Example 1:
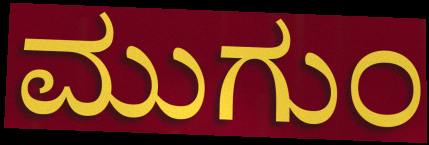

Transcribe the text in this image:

ಮುಗುಂ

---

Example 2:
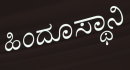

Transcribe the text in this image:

ಹಿಂದೂಸ್ಥಾನಿ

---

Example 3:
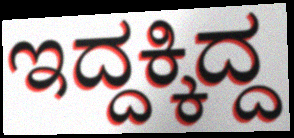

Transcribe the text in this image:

ಇದ್ದಕ್ಕಿದ್ದ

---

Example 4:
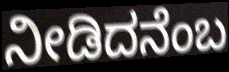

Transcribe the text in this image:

ನೀಡಿದನೆಂಬ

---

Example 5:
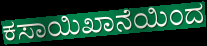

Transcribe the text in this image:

ಕಸಾಯಿಖಾನೆಯಿಂದ